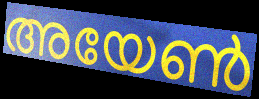
അയേൺ